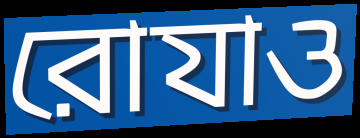
রোযাও